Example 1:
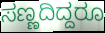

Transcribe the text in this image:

ಸಣ್ಣದಿದ್ದರೂ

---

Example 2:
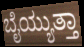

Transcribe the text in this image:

ಬೈಯ್ಯುತ್ತಾ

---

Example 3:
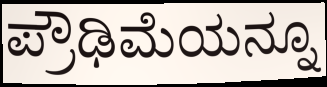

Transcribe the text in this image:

ಪ್ರೌಢಿಮೆಯನ್ನೂ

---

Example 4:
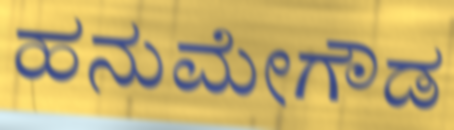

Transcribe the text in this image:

ಹನುಮೇಗೌಡ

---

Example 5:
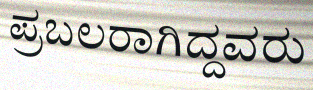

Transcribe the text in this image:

ಪ್ರಬಲರಾಗಿದ್ದವರು